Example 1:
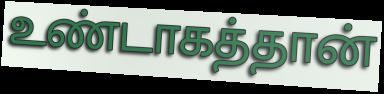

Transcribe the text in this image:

உண்டாகத்தான்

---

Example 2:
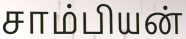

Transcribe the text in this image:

சாம்பியன்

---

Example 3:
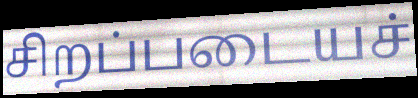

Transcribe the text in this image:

சிறப்படையச்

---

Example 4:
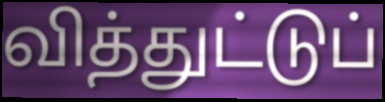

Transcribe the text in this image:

வித்துட்டுப்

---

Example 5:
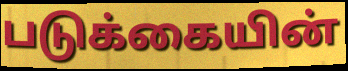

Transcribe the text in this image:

படுக்கையின்